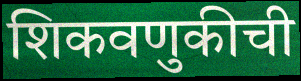
शिकवणुकीची